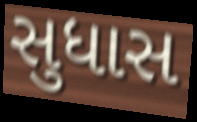
સુધાસ